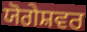
ਯੋਗੇਸ਼ਵਰ